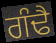
ਗੰਢੈ